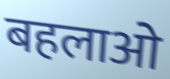
बहलाओ